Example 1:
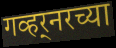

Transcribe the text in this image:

गव्हर्नरच्या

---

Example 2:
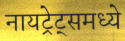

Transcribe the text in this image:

नायट्रेट्समध्ये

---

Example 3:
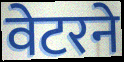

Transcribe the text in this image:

वेटरने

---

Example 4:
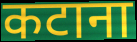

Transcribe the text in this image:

कटाना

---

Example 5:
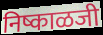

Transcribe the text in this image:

निष्काळजी